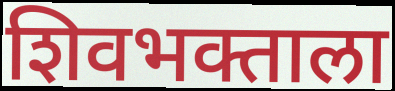
शिवभक्ताला